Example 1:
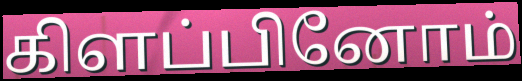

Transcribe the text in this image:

கிளப்பினோம்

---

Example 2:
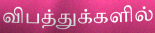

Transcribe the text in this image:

விபத்துக்களில்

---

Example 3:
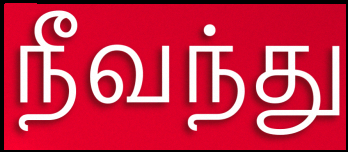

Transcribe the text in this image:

நீவந்து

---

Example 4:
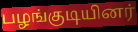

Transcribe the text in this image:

பழங்குடியினர்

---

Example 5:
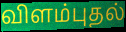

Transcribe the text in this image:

விளம்புதல்